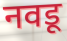
नवडू